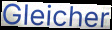
Gleicher